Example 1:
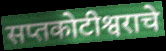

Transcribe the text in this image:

सप्तकोटीश्वराचे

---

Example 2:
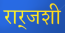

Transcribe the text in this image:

रार्जशी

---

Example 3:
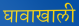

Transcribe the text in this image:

घावाखाली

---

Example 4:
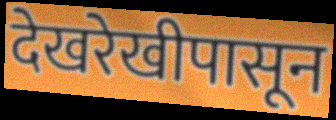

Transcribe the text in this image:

देखरेखीपासून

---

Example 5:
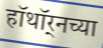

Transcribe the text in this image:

हॉथॉर्नच्या